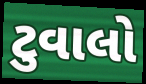
ટુવાલો